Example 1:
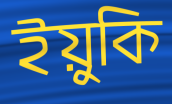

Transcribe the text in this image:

ইয়ুকি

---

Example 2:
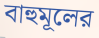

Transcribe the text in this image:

বাহুমূলের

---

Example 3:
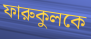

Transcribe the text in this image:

ফারুকুলকে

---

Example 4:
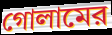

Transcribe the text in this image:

গোলামের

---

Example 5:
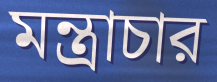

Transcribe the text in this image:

মন্ত্রাচার